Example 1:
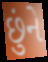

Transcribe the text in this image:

છુંને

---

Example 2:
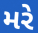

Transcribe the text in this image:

મરે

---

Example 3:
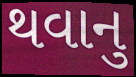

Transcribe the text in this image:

થવાનુ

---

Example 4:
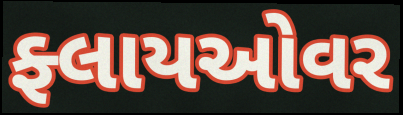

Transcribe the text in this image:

ફ્લાયઓવર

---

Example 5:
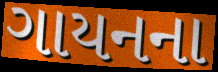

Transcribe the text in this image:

ગાયનના